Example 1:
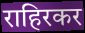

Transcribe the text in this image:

राहिरकर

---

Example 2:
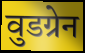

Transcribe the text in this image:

वुडग्रेन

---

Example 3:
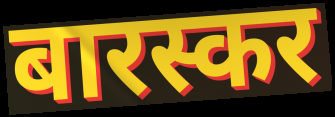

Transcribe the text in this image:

बारस्कर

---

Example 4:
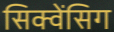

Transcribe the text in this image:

सिक्वेंसिग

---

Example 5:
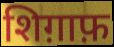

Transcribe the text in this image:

शिग़ाफ़